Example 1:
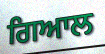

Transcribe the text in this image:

ਗਿਆਲ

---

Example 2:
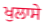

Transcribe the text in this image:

ਖੁਲਾਸੇ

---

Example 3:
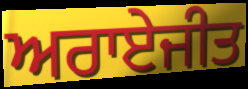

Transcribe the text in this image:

ਅਰਾਏਜੀਤ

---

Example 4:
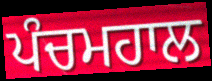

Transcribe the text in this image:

ਪੰਚਮਹਾਲ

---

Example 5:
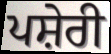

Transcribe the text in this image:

ਪਸ਼ੇਰੀ